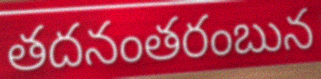
తదనంతరంబున